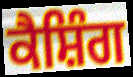
ਕੈਸ਼ਿੰਗ